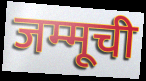
जम्मूची